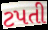
ટપતી